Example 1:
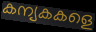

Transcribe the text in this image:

കന്യകകളെ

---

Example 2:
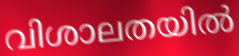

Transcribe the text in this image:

വിശാലതയിൽ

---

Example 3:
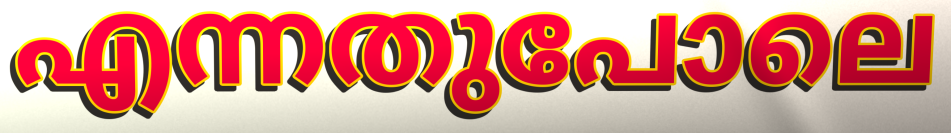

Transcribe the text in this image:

എന്നതുപോലെ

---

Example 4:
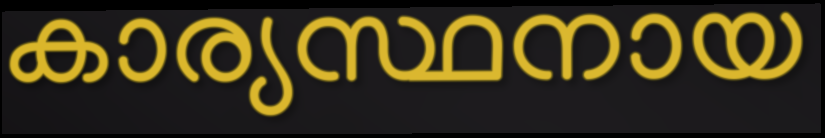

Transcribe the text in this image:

കാര്യസ്ഥനായ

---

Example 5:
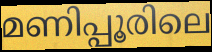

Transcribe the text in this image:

മണിപ്പൂരിലെ